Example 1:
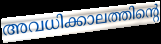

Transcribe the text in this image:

അവധിക്കാലത്തിന്റെ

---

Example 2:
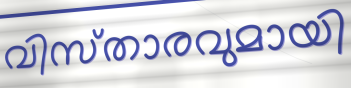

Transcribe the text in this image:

വിസ്‌താരവുമായി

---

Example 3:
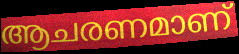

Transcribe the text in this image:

ആചരണമാണ്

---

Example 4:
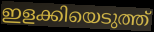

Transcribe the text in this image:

ഇളക്കിയെടുത്ത്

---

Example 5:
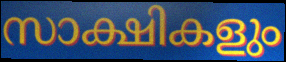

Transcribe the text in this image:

സാക്ഷികളും